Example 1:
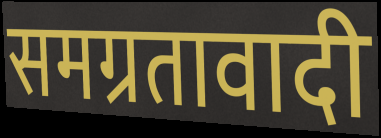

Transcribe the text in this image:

समग्रतावादी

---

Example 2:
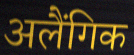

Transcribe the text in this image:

अलैंगिक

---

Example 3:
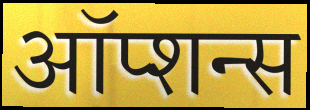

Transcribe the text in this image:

ऑप्शन्स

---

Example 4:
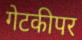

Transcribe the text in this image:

गेटकीपर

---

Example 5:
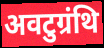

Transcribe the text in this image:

अवटुग्रंथि